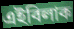
এইবিলাক